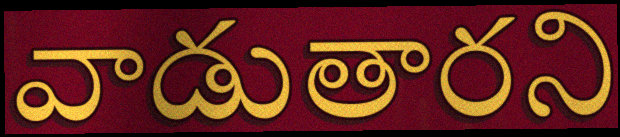
వాడుతారని